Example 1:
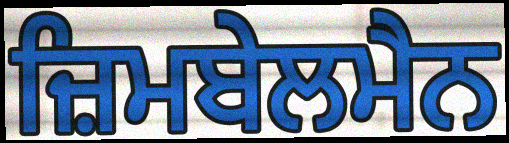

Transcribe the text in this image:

ਜ਼ਿਮਬੇਲਮੈਨ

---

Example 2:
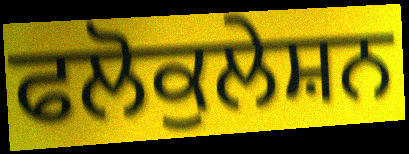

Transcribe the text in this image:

ਫਲੋਕੁਲੇਸ਼ਨ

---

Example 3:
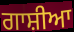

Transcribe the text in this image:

ਗਾਸ਼ੀਆ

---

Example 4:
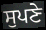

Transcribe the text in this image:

ਸੁਪਣੇ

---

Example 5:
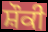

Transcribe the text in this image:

ਸ਼ੌਕੀ